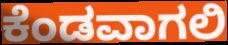
ಕೆಂಡವಾಗಲಿ